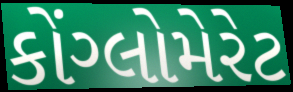
કોંગ્લોમેરેટ